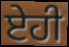
ਏਹੀ